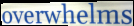
overwhelms